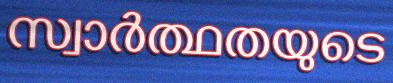
സ്വാർത്ഥതയുടെ